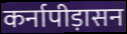
कर्नापीड़ासन